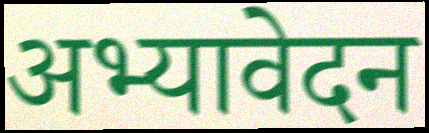
अभ्यावेदन